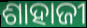
ଶାହାଜୀ